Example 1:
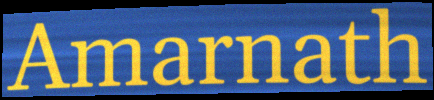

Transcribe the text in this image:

Amarnath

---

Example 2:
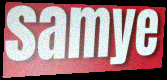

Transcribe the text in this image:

samye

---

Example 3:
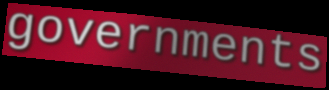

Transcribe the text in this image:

governments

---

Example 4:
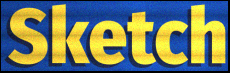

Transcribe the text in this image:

Sketch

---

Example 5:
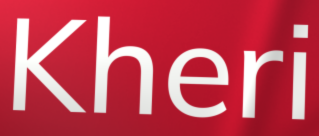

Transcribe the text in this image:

Kheri